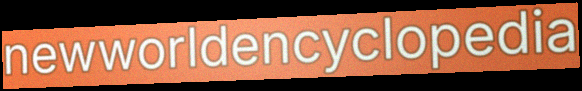
newworldencyclopedia